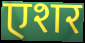
एशर